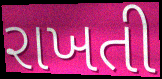
રાખતી